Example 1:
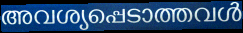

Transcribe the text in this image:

അവശ്യപ്പെടാത്തവൾ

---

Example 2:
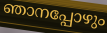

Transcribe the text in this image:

ഞാനപ്പോഴും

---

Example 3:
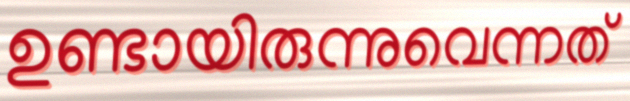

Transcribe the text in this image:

ഉണ്ടായിരുന്നുവെന്നത്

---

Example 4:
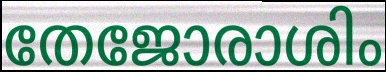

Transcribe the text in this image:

തേജോരാശിം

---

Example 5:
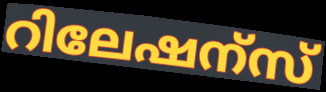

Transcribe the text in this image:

റിലേഷന്സ്